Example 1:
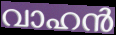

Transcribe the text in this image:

വാഹൻ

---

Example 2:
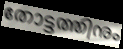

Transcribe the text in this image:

തോട്ടത്തിനും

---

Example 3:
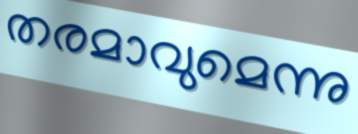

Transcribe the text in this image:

തരമാവുമെന്നു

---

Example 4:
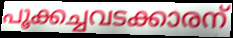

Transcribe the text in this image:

പൂക്കച്ചവടക്കാരന്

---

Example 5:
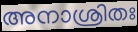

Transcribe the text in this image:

അനാശ്രിതഃ